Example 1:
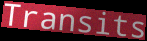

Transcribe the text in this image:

Transits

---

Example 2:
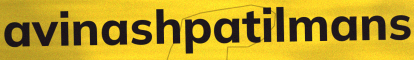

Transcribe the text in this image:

avinashpatilmans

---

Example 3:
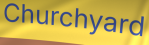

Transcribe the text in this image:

Churchyard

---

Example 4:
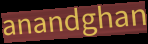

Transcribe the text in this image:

anandghan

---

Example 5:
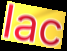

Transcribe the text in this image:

lac